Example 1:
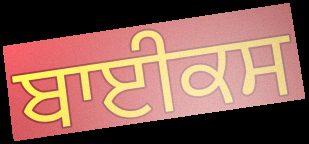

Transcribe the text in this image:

ਬਾਈਕਸ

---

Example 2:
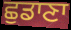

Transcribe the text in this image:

ਛੁਡਾਣਾ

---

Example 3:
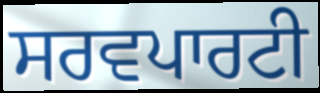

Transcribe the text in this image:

ਸਰਵਪਾਰਟੀ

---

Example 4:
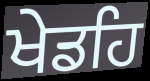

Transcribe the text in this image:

ਖੇਡਹਿ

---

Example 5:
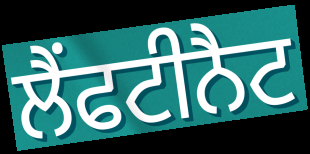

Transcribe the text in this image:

ਲੈਂਫਟੀਨੈਟ